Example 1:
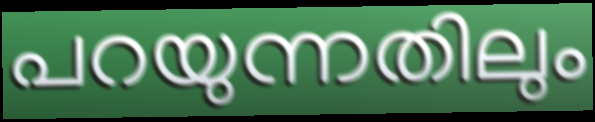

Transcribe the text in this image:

പറയുന്നതിലും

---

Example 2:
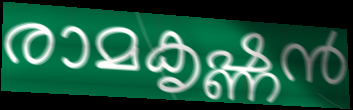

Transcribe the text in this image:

രാമകൃഷ്ണൻ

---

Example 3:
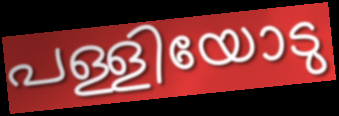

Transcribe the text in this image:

പള്ളിയോടു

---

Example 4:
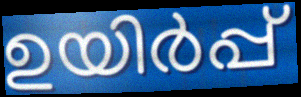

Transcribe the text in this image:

ഉയിർപ്പ്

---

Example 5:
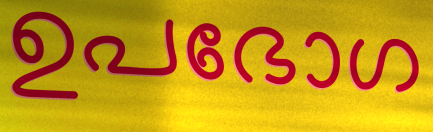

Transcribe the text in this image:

ഉപഭോഗ